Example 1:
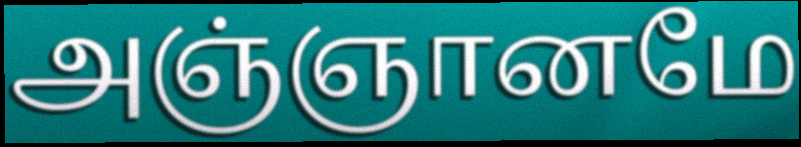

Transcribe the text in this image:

அஞ்ஞானமே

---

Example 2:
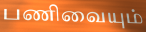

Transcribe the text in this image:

பணிவையும்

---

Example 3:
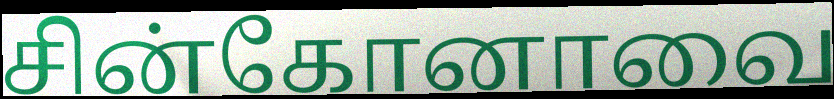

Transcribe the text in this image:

சின்கோனாவை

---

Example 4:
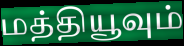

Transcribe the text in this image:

மத்தியூவும்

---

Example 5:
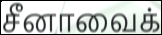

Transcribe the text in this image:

சீனாவைக்